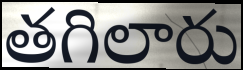
తగిలారు